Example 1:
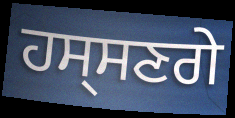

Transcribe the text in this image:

ਹਸ੍ਸਣਗੇ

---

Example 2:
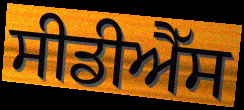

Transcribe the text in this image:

ਸੀਡੀਐੱਸ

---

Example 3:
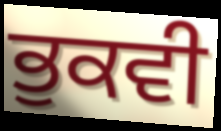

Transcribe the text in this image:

ਭੁਕਵੀ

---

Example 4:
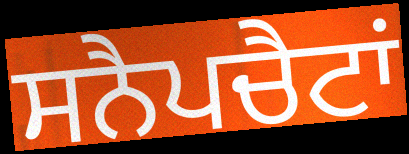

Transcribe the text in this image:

ਸਨੈਪਚੈਟਾਂ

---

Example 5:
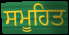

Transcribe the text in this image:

ਸਮੂਹਿਤ